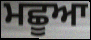
ਮਛੂਆ